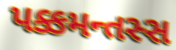
પક્કમન્તસ્સ